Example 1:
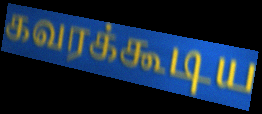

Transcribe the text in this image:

கவரக்கூடிய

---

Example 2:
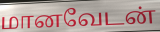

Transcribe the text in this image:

மானவேடன்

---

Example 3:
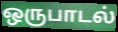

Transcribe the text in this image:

ஒருபாடல்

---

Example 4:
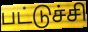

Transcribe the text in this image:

பட்டுச்சி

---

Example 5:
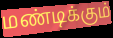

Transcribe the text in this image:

மண்டிக்கும்